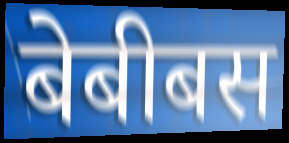
बेबीबस